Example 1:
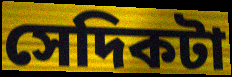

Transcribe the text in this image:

সেদিকটা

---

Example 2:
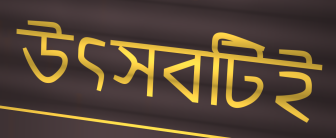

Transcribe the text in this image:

উৎসবটিই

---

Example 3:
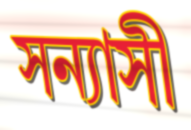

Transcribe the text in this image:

সন্যাসী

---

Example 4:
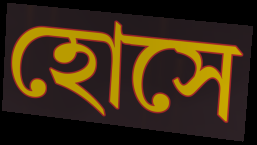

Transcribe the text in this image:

হোসে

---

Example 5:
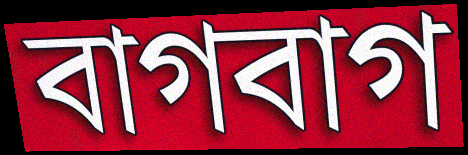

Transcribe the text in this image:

বাগবাগ